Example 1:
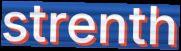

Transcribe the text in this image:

strenth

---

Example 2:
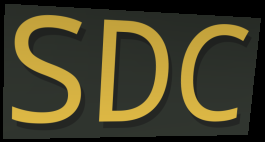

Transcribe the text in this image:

SDC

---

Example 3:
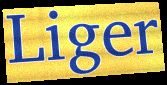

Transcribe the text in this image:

Liger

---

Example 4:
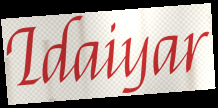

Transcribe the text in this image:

Idaiyar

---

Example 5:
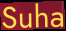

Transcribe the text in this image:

Suha